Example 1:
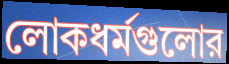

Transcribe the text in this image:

লোকধর্মগুলোর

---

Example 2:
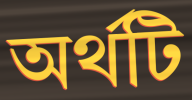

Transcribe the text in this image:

অর্থটি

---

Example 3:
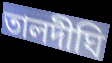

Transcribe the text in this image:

তালদীঘি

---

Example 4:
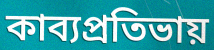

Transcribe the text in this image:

কাব্যপ্রতিভায়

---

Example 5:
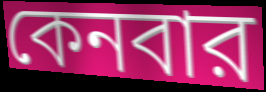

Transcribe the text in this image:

কেনবার